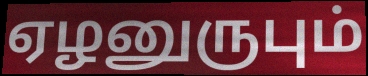
ஏழனுருபும்